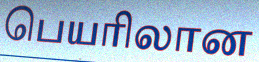
பெயரிலான